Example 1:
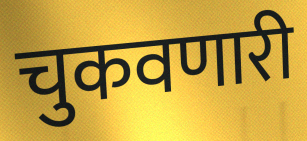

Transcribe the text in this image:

चुकवणारी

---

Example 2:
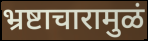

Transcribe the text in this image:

भ्रष्टाचारामुळं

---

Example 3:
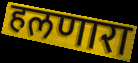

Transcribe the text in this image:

हलणारा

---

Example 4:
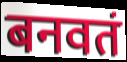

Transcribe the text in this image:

बनवतं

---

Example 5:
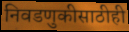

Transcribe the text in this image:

निवडणुकीसाठीही